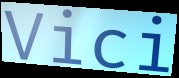
Vici